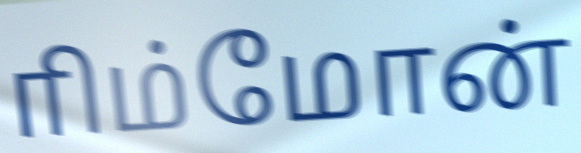
ரிம்மோன்